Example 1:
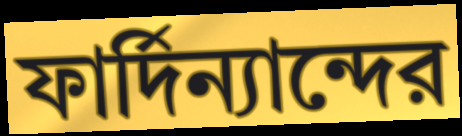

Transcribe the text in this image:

ফার্দিন্যান্দের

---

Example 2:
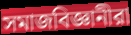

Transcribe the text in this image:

সমাজবিজ্ঞানীরা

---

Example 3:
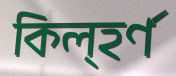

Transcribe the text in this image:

কিল্‌হর্ণ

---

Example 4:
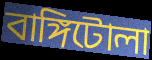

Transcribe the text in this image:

বাঙ্গিটোলা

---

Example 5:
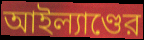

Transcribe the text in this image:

আইল্যাণ্ডের